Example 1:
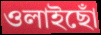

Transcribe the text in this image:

ওলাইছোঁ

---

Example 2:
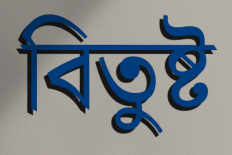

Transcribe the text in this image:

বিতুষ্ট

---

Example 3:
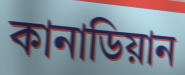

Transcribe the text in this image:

কানাডিয়ান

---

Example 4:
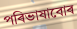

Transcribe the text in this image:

পৰিভাষাবোৰ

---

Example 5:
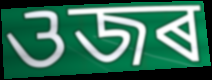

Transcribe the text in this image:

ওজৰ